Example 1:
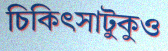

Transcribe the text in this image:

চিকিৎসাটুকুও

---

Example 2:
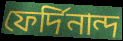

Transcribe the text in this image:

ফের্দিনান্দ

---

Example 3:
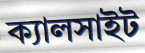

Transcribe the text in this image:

ক্যালসাইট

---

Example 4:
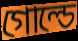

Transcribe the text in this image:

গোল্ডে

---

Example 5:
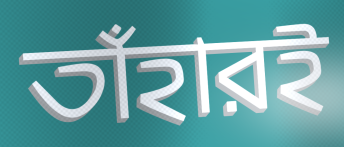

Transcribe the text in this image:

তাঁহারই